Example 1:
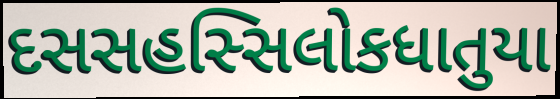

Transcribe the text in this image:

દસસહસ્સિલોકધાતુયા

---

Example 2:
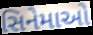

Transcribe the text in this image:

સિનેમાઓ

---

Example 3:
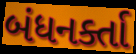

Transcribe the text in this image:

બંધનર્ક્તા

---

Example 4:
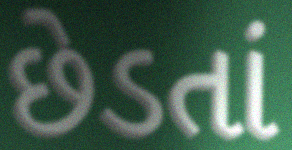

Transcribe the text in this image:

છેડતાં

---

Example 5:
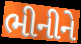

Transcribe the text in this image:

ભીનીને